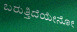
ಬರುತ್ತಿದೆಯೇನೋ